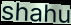
shahu